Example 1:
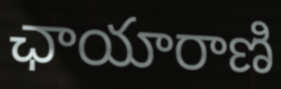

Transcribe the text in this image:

ఛాయారాణి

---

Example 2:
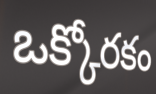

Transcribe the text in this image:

ఒక్కోరకం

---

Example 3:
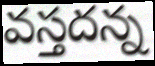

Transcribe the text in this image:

వస్తదన్న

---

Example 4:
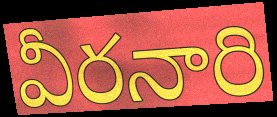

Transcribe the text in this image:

వీరనారి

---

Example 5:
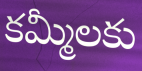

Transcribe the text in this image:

కమ్మీలకు